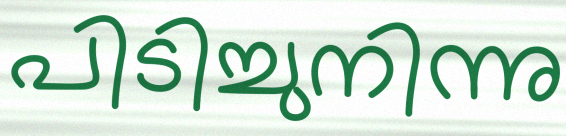
പിടിച്ചുനിന്നു